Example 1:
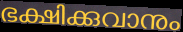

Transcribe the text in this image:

ഭക്ഷിക്കുവാനും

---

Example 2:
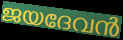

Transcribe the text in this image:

ജയദേവൻ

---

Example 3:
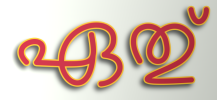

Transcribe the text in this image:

ഏതു്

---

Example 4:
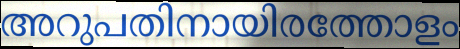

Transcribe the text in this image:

അറുപതിനായിരത്തോളം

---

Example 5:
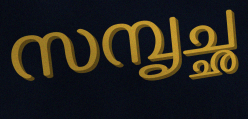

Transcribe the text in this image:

സമ്പൃച്ഛ